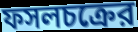
ফসলচক্রের